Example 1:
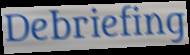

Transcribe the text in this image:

Debriefing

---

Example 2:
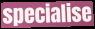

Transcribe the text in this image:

specialise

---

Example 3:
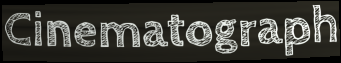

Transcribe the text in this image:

Cinematograph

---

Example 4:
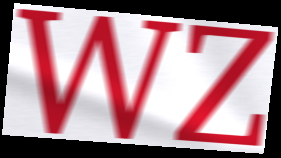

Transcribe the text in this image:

WZ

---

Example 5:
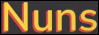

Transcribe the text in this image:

Nuns